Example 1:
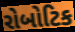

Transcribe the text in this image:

રોબોટિક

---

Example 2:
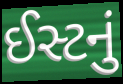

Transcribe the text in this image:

ઈસ્ટનું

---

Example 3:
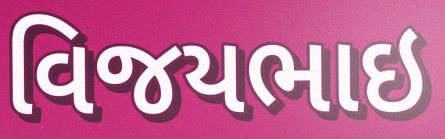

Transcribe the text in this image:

વિજયભાઇ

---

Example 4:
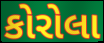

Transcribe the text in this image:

કોરોલા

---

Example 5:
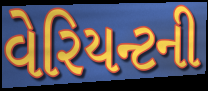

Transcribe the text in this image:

વેરિયન્ટની